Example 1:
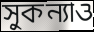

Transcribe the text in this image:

সুকন্যাও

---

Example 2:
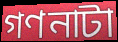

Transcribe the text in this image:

গণনাটা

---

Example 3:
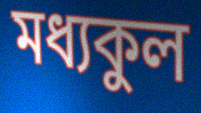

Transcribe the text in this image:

মধ্যকুল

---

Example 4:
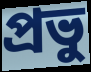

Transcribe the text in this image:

প্রভু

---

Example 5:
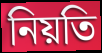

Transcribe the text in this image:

নিয়তি